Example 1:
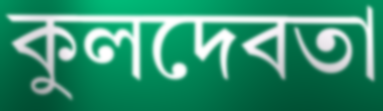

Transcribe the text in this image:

কুলদেবতা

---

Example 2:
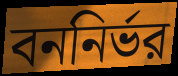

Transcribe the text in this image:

বননির্ভর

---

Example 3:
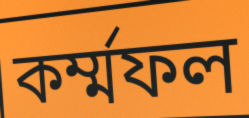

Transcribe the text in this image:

কর্ম্মফল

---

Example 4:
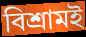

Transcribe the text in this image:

বিশ্রামই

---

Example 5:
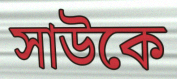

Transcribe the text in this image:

সাউকে